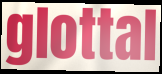
glottal